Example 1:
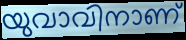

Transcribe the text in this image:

യുവാവിനാണ്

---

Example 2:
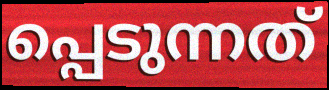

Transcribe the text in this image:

പ്പെടുന്നത്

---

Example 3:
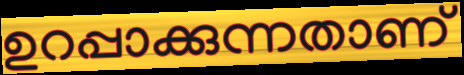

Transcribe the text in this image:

ഉറപ്പാക്കുന്നതാണ്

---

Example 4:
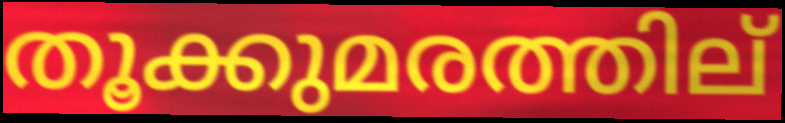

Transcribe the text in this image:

തൂക്കുമരത്തില്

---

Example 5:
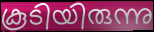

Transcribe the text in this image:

കൂടിയിരുന്നു